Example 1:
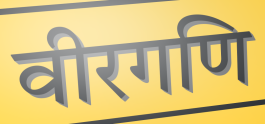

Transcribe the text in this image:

वीरगणि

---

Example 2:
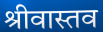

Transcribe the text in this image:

श्रीवास्तव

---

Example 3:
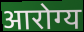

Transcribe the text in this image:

आरोग्य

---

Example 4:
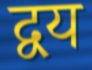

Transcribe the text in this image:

द्वय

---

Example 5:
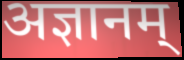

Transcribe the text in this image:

अज्ञानम्